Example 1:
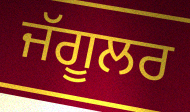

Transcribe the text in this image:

ਜੱਗੂਲਰ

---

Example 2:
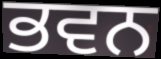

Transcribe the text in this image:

ਭਵਨ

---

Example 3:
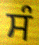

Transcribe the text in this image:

ਸੰ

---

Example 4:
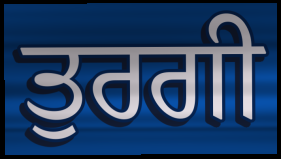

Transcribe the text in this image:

ਤੁਰਗੀ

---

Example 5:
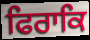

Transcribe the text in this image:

ਫਿਰਾਕਿ